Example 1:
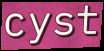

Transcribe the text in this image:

cyst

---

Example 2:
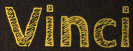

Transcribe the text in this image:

Vinci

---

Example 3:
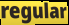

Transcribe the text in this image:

regular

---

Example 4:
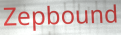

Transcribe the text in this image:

Zepbound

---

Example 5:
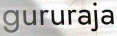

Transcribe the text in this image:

gururaja